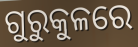
ଗୁରୁକୁଳରେ